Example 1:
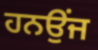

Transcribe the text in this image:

ਹਨਉਂਜ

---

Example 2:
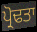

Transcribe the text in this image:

ਪ੍ਰੋਢਤਾ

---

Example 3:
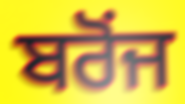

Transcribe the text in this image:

ਬਰੋਂਜ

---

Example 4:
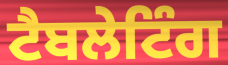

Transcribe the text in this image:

ਟੈਬਲੇਟਿੰਗ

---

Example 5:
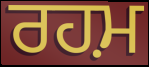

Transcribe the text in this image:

ਰਹ਼ਮ